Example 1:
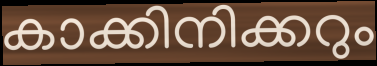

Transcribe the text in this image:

കാക്കിനിക്കറും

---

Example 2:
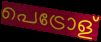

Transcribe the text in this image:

പെട്രോള്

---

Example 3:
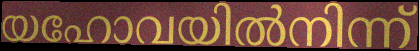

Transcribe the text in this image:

യഹോവയിൽനിന്ന്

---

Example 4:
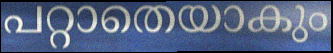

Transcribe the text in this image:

പറ്റാതെയാകും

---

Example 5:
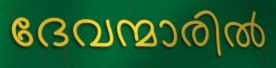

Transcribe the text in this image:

ദേവന്മാരിൽ